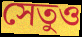
সেতুও